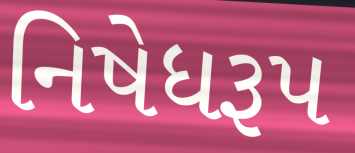
નિષેધરૂપ